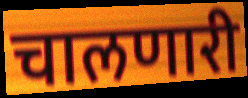
चालणारी